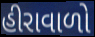
હીરાવાળો